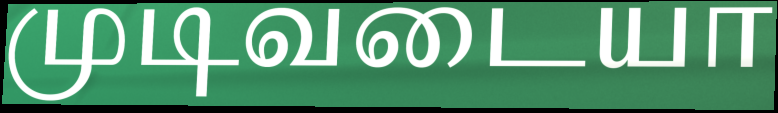
முடிவடையா